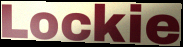
Lockie